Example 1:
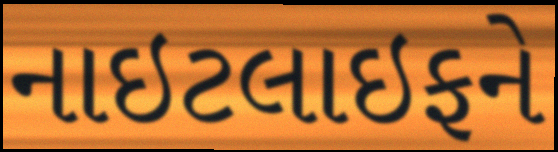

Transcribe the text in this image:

નાઇટલાઇફને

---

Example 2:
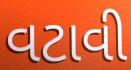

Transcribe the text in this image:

વટાવી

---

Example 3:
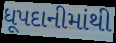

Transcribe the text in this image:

ધૂપદાનીમાંથી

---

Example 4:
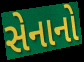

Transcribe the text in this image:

સેનાનો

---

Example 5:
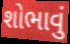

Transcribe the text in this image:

શોભાવું